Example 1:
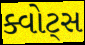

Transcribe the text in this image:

ક્વોટ્સ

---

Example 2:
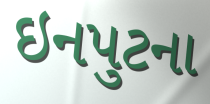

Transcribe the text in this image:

ઇનપુટના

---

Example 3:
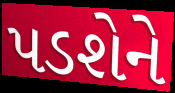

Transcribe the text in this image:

પડશેને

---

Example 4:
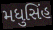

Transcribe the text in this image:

મધુસિંહ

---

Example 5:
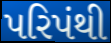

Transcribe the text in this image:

પરિપંથી